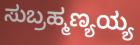
ಸುಬ್ರಹ್ಮಣ್ಯಯ್ಯ